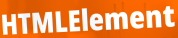
HTMLElement